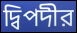
দ্বিপদীর